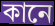
কানে